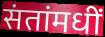
संतांमधीं